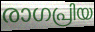
രാഗപ്രിയ